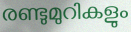
രണ്ടുമുറികളും